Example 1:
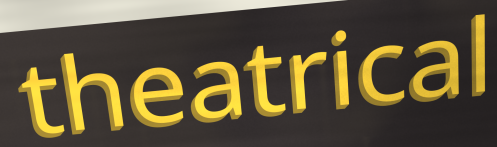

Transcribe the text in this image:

theatrical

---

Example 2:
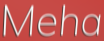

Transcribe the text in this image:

Meha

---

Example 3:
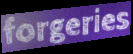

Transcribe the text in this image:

forgeries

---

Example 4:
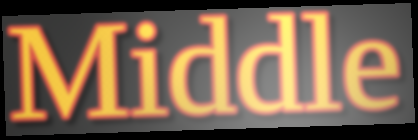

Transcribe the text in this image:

Middle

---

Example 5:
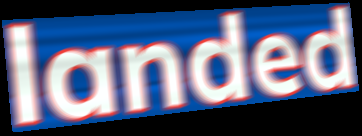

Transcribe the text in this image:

landed